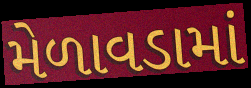
મેળાવડામાં